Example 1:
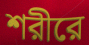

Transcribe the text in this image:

শরীরে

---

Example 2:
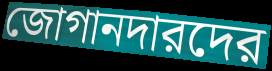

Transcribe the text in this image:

জোগানদারদের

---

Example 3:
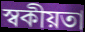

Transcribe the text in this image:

স্বকীয়তা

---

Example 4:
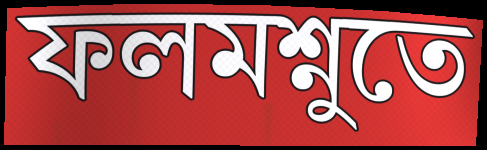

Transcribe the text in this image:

ফলমশ্নুতে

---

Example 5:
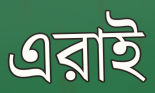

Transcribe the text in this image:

এরাই